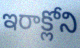
ఇరాక్లోని